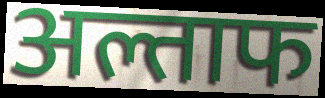
अल्ताफ